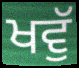
ਖਵੁੱ